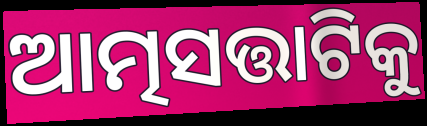
ଆତ୍ମସତ୍ତାଟିକୁ